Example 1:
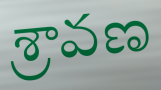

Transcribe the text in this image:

శ్రావణ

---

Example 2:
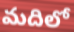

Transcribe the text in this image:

మదిలో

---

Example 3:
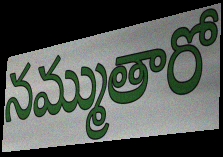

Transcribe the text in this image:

నమ్ముతారో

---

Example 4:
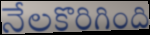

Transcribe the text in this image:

నేలకొరిగింది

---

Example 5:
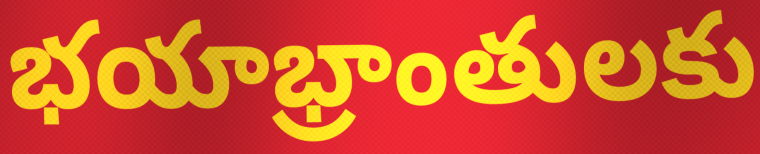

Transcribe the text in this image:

భయాభ్రాంతులకు